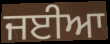
ਜਈਆ